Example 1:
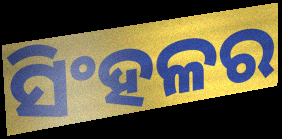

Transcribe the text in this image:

ସିଂହଳର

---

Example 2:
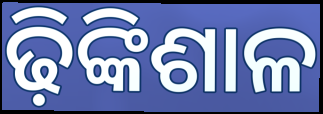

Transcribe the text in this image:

ଢ଼ିଙ୍କିଶାଳ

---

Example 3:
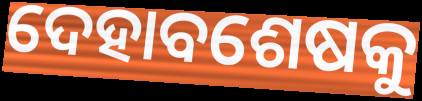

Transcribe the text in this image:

ଦେହାବଶେଷକୁ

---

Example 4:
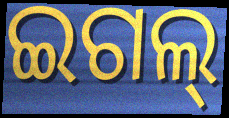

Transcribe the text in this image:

ଇଗଲ୍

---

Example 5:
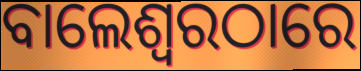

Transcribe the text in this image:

ବାଲେଶ୍ଵରଠାରେ